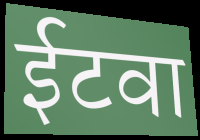
ईटवा